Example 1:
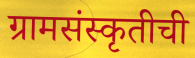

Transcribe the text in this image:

ग्रामसंस्कृतीची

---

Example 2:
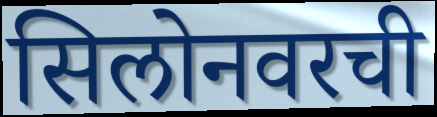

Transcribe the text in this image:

सिलोनवरची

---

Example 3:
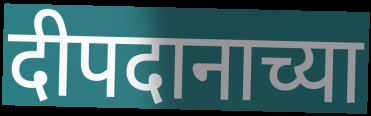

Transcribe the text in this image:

दीपदानाच्या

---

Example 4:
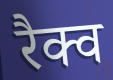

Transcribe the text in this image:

रैक्व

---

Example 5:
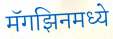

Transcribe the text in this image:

मॅगझिनमध्ये